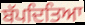
ਬੱਪਦਿਤਿਆ